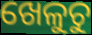
ଖେଳୁଚୁ